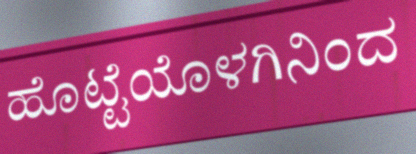
ಹೊಟ್ಟೆಯೊಳಗಿನಿಂದ